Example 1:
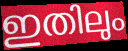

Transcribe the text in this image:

ഇതിലും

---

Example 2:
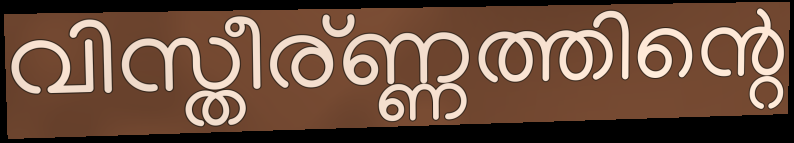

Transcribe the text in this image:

വിസ്തീര്ണ്ണത്തിന്റെ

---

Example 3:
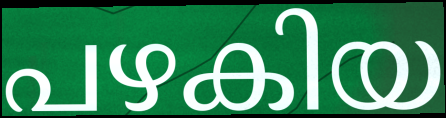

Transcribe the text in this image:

പഴകിയ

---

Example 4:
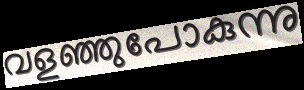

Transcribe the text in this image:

വളഞ്ഞുപോകുന്നു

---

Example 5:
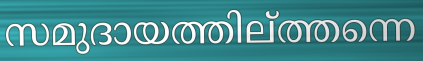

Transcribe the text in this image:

സമുദായത്തില്ത്തന്നെ